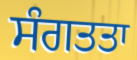
ਸੰਗਤਤਾ